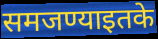
समजण्याइतके